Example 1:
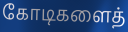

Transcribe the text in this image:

கோடிகளைத்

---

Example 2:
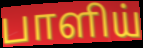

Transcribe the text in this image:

பாளிய்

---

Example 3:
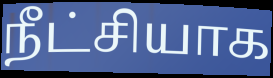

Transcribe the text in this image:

நீட்சியாக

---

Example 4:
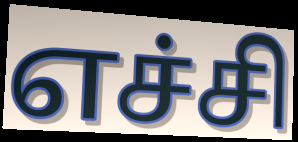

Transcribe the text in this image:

எச்சி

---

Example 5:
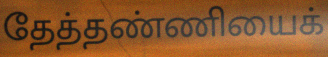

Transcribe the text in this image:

தேத்தண்ணியைக்